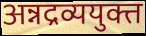
अन्नद्रव्ययुक्त